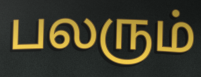
பலரும்